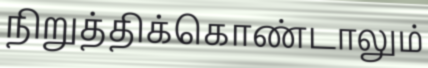
நிறுத்திக்கொண்டாலும்